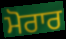
ਮੋਰਾਰ